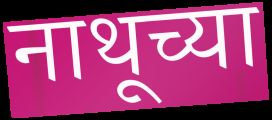
नाथूच्या